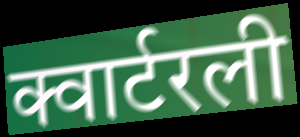
क्वार्टरली